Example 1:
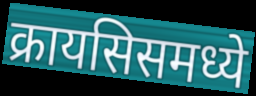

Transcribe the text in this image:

क्रायसिसमध्ये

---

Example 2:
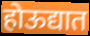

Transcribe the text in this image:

होऊद्यात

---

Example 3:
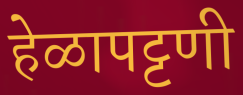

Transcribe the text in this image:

हेळापट्टणी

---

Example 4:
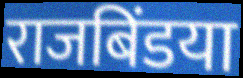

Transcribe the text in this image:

राजबिंडया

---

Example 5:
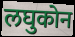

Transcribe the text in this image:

लघुकोन